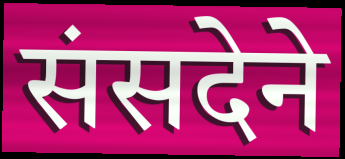
संसदेने